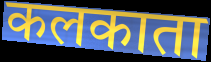
कलकाता